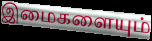
இமைகளையும்